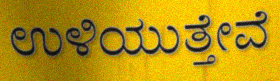
ಉಳಿಯುತ್ತೇವೆ